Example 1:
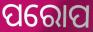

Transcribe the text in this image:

ପରୋପ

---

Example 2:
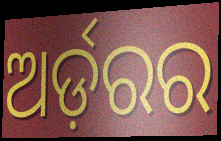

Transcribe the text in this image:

ଅର୍ଡ଼ରର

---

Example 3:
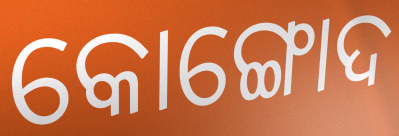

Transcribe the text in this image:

କୋଙ୍ଗୋଦ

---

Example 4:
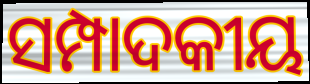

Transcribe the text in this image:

ସମ୍ପାଦକୀୟ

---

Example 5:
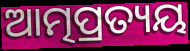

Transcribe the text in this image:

ଆତ୍ମପ୍ରତ୍ୟୟ